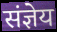
संज्ञेय